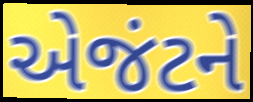
એજંટને